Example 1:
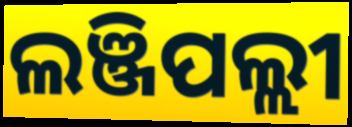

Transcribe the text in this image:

ଲଞ୍ଜିପଲ୍ଲୀ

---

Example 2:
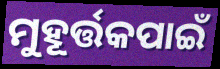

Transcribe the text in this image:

ମୁହୂର୍ତ୍ତକପାଇଁ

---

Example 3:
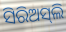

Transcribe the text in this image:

ସିରିଅସ୍‌ଲି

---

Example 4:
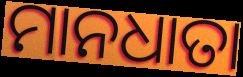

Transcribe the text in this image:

ମାନଧାତା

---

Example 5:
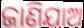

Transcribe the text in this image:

ଜାଣିଯାଅ